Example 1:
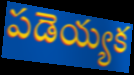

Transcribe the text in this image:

పడెయ్యక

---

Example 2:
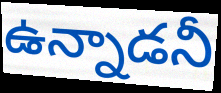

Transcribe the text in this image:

ఉన్నాడనీ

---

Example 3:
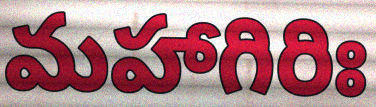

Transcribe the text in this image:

మహాగిరిః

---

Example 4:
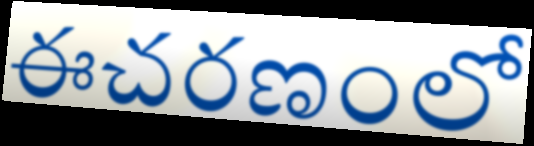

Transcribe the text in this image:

ఈచరణంలో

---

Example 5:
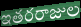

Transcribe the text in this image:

ఇతరరాజుల